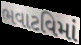
ભવાટવિમાં